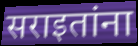
सराइतांना